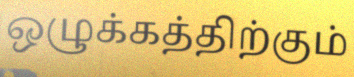
ஒழுக்கத்திற்கும்